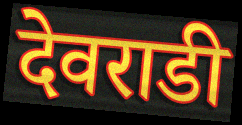
देवराडी